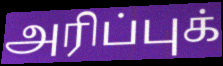
அரிப்புக்